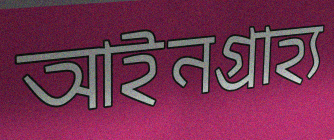
আইনগ্রাহ্য